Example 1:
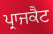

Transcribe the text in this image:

ਪ੍ਰਾਜਕੈਟ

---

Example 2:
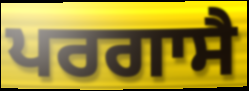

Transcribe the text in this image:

ਪਰਗਾਸੈ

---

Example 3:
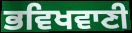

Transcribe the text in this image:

ਭਵਿਖਵਾਣੀ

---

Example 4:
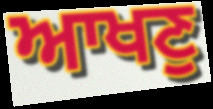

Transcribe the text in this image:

ਆਖਣੁ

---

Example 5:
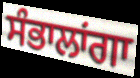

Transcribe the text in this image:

ਸੰਭਾਲਾਂਗਾ